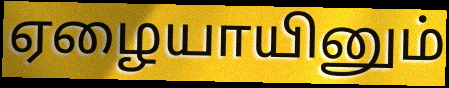
ஏழையாயினும்